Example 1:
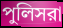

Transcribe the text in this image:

পুলিসরা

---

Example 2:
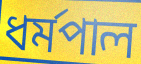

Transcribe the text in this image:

ধর্মপাল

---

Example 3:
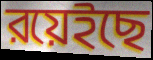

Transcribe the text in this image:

রয়েইছে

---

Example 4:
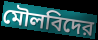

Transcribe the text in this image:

মৌলবিদের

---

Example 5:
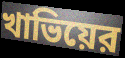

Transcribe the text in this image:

খাভিয়ের